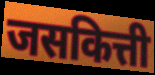
जसकित्ती